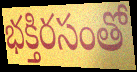
భక్తిరసంతో